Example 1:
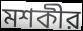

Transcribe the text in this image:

মশকীর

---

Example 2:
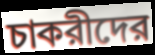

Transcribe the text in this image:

চাকরীদের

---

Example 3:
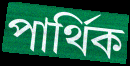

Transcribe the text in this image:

পার্থিক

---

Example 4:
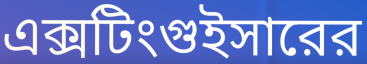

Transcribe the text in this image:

এক্সটিংগুইসারের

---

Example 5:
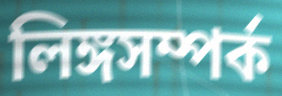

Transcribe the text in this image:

লিঙ্গসম্পর্ক